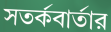
সতর্কবার্তার